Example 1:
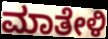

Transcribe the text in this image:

ಮಾತೇಳಿ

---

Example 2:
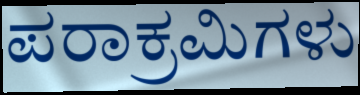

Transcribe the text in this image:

ಪರಾಕ್ರಮಿಗಳು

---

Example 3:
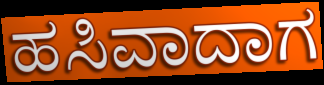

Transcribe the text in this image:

ಹಸಿವಾದಾಗ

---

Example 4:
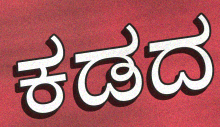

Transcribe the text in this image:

ಕಡದ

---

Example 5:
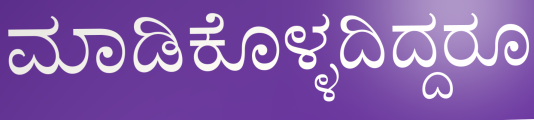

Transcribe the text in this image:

ಮಾಡಿಕೊಳ್ಳದಿದ್ದರೂ